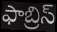
ఫాబ్రిస్